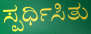
ಸ್ಪರ್ಧಿಸಿತು